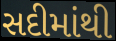
સદીમાંથી